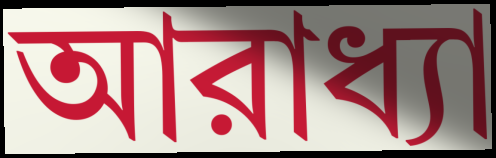
আরাধ্যা